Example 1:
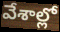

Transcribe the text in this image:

వేశాల్లో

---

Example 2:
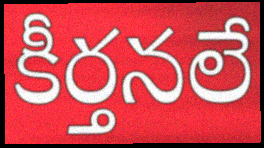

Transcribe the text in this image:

కీర్తనలే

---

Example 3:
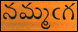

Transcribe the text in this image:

నమ్మఁగ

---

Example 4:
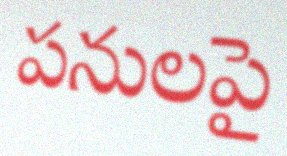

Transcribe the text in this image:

పనులపై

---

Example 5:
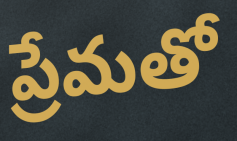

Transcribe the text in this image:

ప్రేమతో